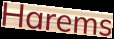
Harems